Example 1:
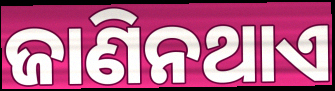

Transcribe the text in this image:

ଜାଣିନଥାଏ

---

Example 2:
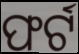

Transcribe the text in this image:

ଫର୍ଟ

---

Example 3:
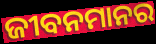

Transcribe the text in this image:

ଜୀବନମାନର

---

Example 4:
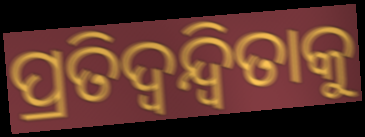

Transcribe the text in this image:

ପ୍ରତିଦ୍ୱନ୍ଦ୍ୱିତାକୁ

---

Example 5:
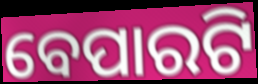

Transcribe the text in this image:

ବେପାରଟି